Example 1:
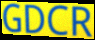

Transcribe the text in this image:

GDCR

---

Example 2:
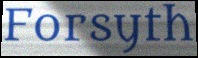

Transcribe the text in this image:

Forsyth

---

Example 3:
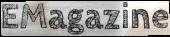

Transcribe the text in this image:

EMagazine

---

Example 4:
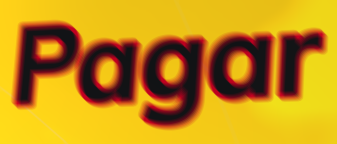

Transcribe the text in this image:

Pagar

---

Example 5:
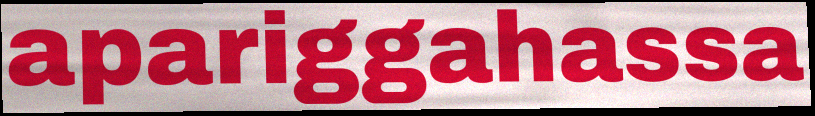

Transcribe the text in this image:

apariggahassa